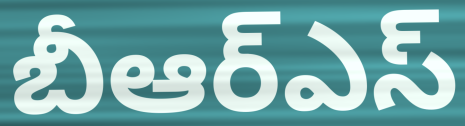
బీఆర్ఎస్